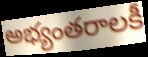
అభ్యంతరాలకీ